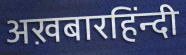
अख़बारहिंन्दी